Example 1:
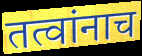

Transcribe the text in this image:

तत्वांनाच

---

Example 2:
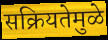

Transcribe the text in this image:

सक्रियतेमुळे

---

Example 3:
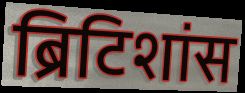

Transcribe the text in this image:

ब्रिटिशांस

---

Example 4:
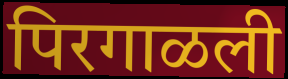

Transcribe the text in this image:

पिरगाळली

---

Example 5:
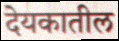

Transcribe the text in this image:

देयकातील